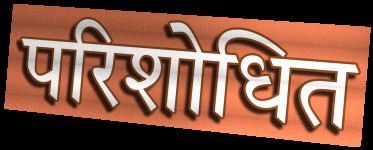
परिशोधित